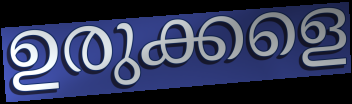
ഉരുക്കളെ